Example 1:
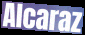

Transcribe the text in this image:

Alcaraz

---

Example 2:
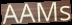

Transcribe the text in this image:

AAMs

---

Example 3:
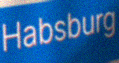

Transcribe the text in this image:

Habsburg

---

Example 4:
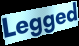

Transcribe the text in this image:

Legged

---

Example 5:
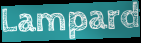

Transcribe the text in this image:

Lampard